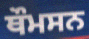
ਥੌਮਸਨ